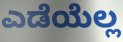
ಎಡೆಯೆಲ್ಲ